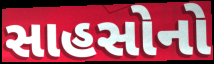
સાહસોનો